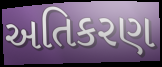
અતિકરણ